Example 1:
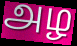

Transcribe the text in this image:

அழ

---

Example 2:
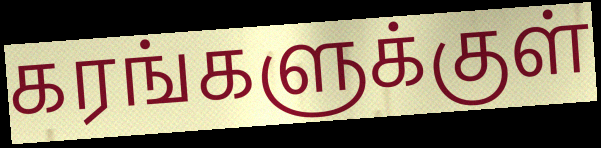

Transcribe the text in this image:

கரங்களுக்குள்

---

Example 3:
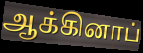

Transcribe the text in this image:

ஆக்கினாப்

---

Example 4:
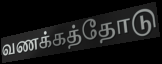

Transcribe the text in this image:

வணக்கத்தோடு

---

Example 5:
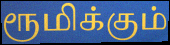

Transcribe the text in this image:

ரூமிக்கும்